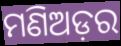
ମଣିଅଡ଼ର